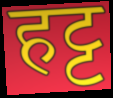
हट्ट